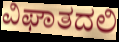
ವಿಘಾತದಲಿ